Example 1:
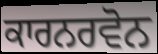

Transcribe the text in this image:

ਕਾਰਨਰਵੋਨ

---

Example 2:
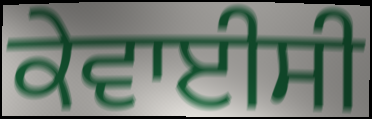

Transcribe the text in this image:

ਕੇਵਾਈਸੀ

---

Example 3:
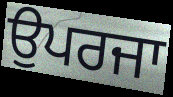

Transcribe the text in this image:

ਉਪਰਜਾ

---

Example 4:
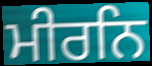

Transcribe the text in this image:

ਮੀਰਨਿ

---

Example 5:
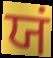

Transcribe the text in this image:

ਯਂ